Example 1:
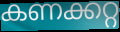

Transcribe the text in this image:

കണക്കറ്റ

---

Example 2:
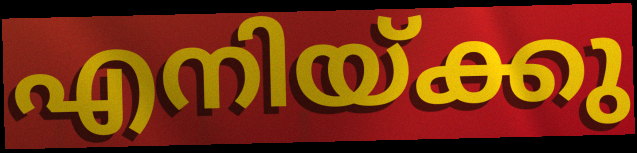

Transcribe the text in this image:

എനിയ്ക്കു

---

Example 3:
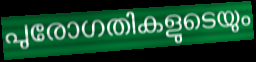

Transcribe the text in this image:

പുരോഗതികളുടെയും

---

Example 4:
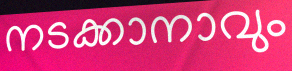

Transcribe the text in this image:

നടക്കാനാവും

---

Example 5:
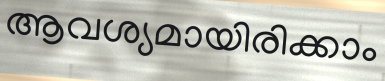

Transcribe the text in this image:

ആവശ്യമായിരിക്കാം